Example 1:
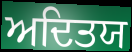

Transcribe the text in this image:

ਅਦਿਤਯ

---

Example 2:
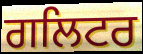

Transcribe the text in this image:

ਗਲਿਟਰ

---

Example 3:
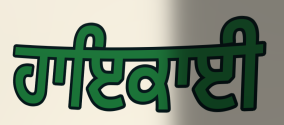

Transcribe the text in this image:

ਹਾਇਕਾਈ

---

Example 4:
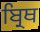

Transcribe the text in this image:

ਬ੍ਰਿਥ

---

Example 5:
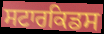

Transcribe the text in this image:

ਸਟਾਰਕਿਡਸ